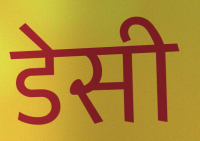
डेसी